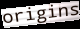
origins